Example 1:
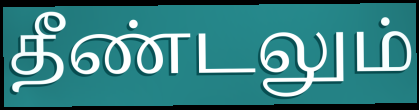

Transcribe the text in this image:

தீண்டலும்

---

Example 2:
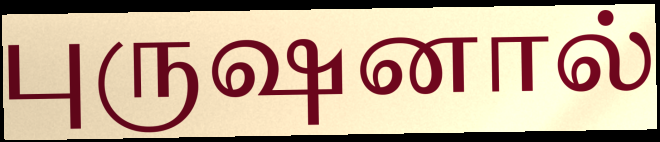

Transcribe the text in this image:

புருஷனால்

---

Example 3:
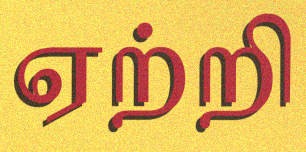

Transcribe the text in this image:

ஏற்றி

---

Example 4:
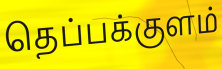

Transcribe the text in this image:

தெப்பக்குளம்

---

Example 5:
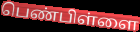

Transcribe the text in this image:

பெண்பிள்ளை